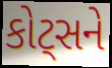
કોટ્સને